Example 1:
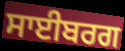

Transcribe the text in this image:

ਸਾਈਬਰਗ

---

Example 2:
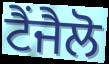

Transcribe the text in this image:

ਟੈਂਜੈਲੋ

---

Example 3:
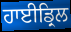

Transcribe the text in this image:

ਹਾਈਡ੍ਰਿਲ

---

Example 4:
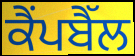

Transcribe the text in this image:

ਕੈਂਪਬੈੱਲ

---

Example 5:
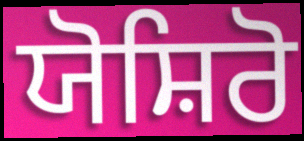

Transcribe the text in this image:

ਯੋਸ਼ਿਰੋ